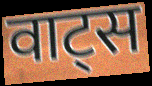
वाट्स